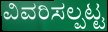
ವಿವರಿಸಲ್ಪಟ್ಟ